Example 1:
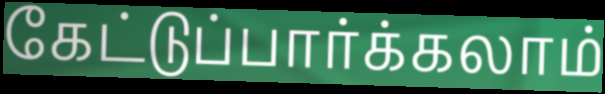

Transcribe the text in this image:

கேட்டுப்பார்க்கலாம்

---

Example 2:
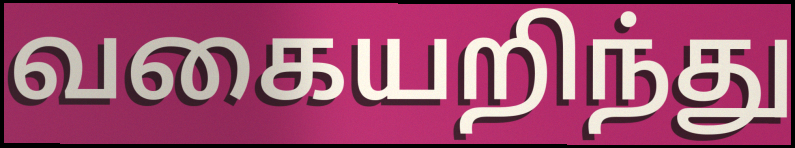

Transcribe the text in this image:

வகையறிந்து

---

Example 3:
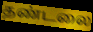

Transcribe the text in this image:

தண்டலை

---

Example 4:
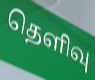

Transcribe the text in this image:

தெளிவு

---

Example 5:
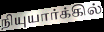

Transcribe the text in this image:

நியுயார்க்கில்